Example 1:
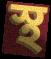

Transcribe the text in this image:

স্থ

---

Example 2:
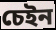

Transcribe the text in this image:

চেইন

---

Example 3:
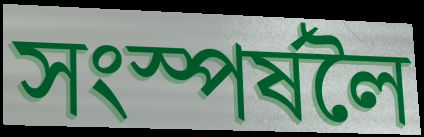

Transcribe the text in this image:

সংস্পৰ্ষলৈ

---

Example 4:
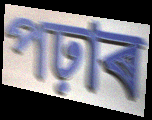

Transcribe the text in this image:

পঢ়াৰ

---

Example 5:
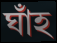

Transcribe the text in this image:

ঘাঁহ